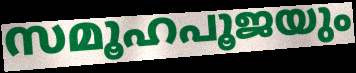
സമൂഹപൂജയും